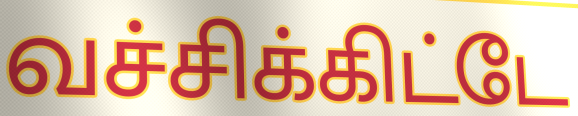
வச்சிக்கிட்டே